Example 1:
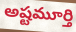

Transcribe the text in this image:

అష్టమూర్తి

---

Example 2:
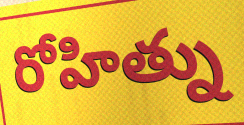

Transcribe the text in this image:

రోహిత్ను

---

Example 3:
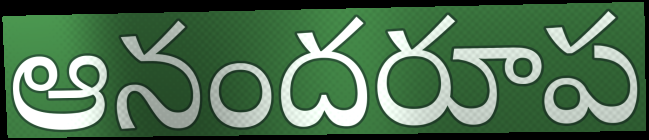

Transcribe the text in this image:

ఆనందరూప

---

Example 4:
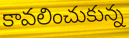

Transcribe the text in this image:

కావలించుకున్న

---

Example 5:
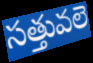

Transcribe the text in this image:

సత్తువలె